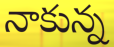
నాకున్న